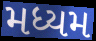
મધ્યમ